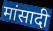
मांसादी